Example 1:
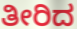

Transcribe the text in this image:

ತೀರಿದ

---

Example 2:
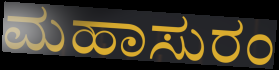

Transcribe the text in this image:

ಮಹಾಸುರಂ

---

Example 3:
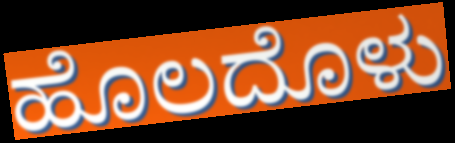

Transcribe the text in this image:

ಹೊಲದೊಳು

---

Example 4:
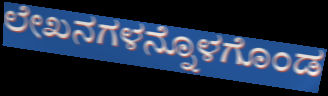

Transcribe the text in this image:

ಲೇಖನಗಳನ್ನೊಳಗೊಂಡ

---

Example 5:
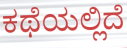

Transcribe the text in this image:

ಕಥೆಯಲ್ಲಿದೆ